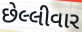
છેલ્લીવાર